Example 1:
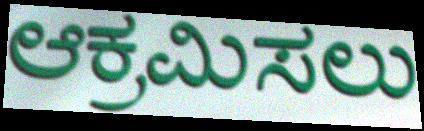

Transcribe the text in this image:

ಆಕ್ರಮಿಸಲು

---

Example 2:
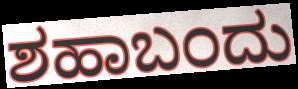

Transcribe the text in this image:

ಶಹಾಬಂದು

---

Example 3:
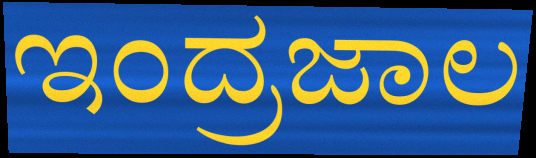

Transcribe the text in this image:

ಇಂದ್ರಜಾಲ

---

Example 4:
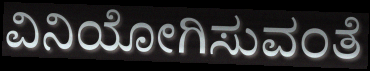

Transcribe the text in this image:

ವಿನಿಯೋಗಿಸುವಂತೆ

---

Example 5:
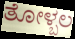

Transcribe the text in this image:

ತೋಳ್ಬಲ